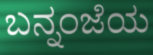
ಬನ್ನಂಜೆಯ